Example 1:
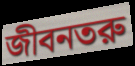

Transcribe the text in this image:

জীবনতরু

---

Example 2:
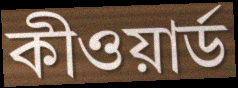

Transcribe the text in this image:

কীওয়ার্ড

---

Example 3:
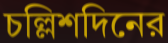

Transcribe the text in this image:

চল্লিশদিনের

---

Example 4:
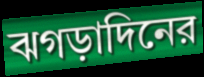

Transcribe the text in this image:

ঝগড়াদিনের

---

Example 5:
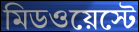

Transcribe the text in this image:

মিডওয়েস্টে